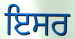
ਇਸਰ